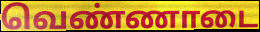
வெண்ணாடை